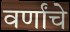
वर्णांचे